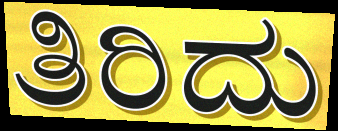
ತಿರಿದು